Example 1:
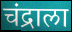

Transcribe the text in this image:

चंद्राला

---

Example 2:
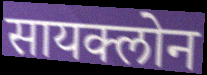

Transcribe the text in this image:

सायक्लोन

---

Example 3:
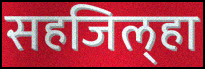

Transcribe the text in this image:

सहजिल्हा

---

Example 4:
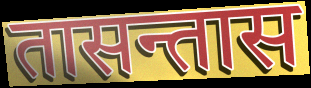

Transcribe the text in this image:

तासन्तास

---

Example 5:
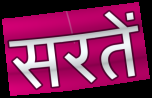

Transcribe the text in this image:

सरतें